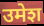
उमेश